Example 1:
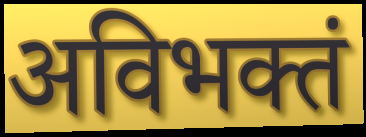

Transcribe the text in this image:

अविभक्तं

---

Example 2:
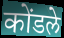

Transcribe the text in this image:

कोंडले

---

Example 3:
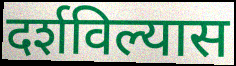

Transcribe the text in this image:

दर्शविल्यास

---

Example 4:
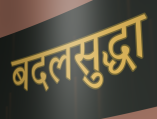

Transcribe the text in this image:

बदलसुद्धा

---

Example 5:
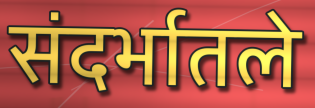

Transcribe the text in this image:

संदर्भातले